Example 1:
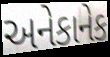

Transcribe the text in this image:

અનેકાનેક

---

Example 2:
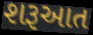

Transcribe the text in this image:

શરૂઆત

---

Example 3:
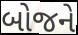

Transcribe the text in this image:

બોજને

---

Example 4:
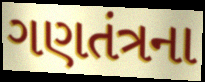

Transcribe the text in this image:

ગણતંત્રના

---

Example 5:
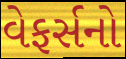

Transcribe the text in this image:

વેફર્સનો